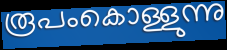
രൂപംകൊള്ളുന്നു